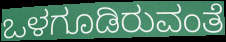
ಒಳಗೂಡಿರುವಂತೆ